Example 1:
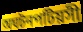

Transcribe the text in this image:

অঘটনপটিয়সী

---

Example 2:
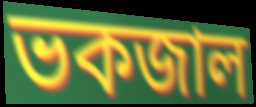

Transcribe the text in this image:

ভকজাল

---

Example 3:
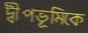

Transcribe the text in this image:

দ্বীপভূমিকে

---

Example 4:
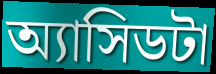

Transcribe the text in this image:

অ্যাসিডটা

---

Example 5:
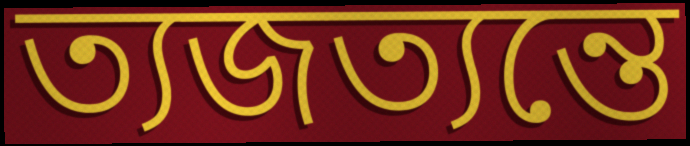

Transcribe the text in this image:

ত্যজত্যন্তে